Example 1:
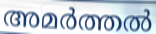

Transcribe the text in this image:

അമർത്തൽ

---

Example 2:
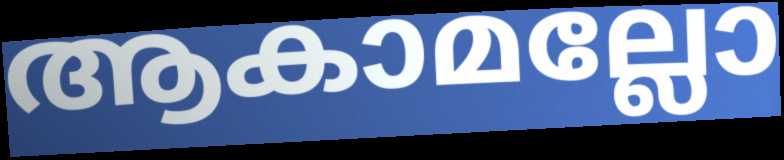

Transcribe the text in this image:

ആകാമല്ലോ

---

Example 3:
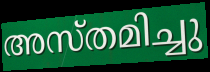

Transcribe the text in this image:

അസ്തമിച്ചു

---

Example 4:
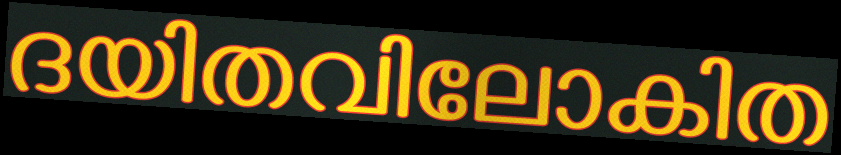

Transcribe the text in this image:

ദയിതവിലോകിത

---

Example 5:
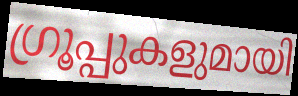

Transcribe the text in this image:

ഗ്രൂപ്പുകളുമായി